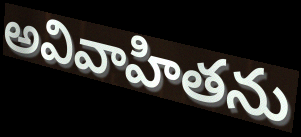
అవివాహితను